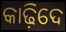
କାଢ଼ିଦେ